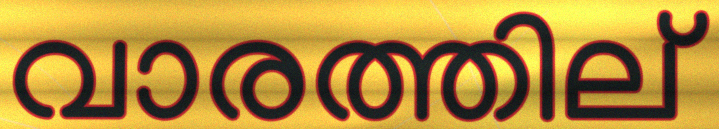
വാരത്തില്